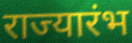
राज्यारंभ